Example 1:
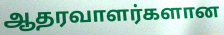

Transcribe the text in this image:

ஆதரவாளர்களான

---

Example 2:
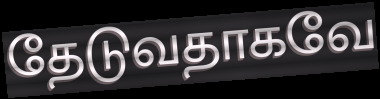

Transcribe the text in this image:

தேடுவதாகவே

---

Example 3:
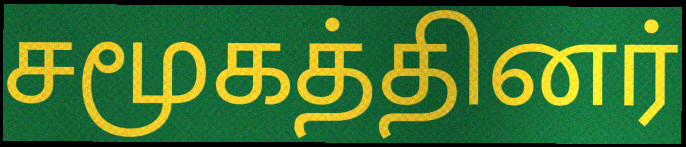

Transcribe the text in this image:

சமூகத்தினர்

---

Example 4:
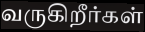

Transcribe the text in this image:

வருகிறீர்கள்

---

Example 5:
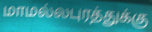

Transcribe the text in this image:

மாமல்லபுரத்துக்கு